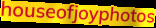
houseofjoyphotos